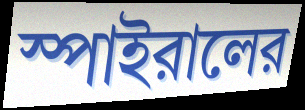
স্পাইরালের